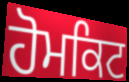
ਹੋਮਕਿਟ